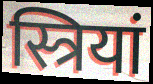
स्त्रियां